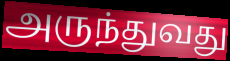
அருந்துவது